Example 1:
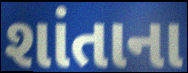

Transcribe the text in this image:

શાંતાના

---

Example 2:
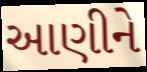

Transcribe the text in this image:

આણીને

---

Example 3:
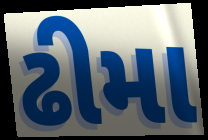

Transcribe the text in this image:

ઢીમા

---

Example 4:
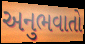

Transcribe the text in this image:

અનુભવાતો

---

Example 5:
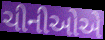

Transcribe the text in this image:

ચીનીઓએ